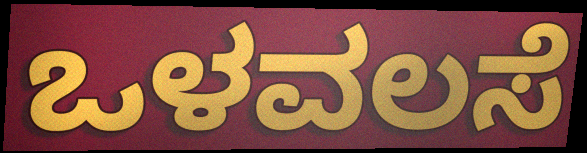
ಒಳವಲಸೆ